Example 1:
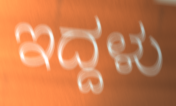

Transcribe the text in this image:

ಇದ್ದಳು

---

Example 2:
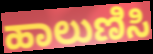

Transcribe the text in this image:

ಹಾಲುಣಿಸಿ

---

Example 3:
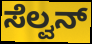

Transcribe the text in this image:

ಸೆಲ್ವನ್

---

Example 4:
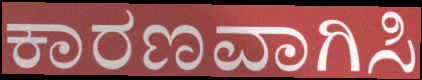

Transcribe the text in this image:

ಕಾರಣವಾಗಿಸಿ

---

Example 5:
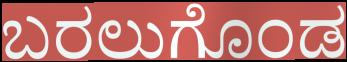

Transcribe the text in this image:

ಬರಲುಗೊಂಡ